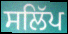
ਸਲਿੱਪ